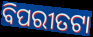
ବିପରୀତଟା